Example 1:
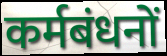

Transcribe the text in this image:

कर्मबंधनों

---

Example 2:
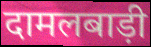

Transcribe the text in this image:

दामलबाड़ी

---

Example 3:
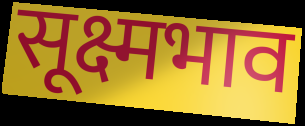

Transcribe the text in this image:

सूक्ष्मभाव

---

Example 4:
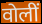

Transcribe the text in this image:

वोलीं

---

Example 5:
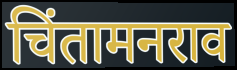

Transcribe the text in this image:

चिंतामनराव